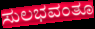
ಸುಲಭವಂತೂ